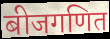
बीजगणित